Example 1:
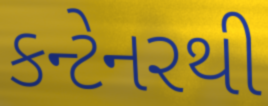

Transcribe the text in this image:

કન્ટેનરથી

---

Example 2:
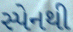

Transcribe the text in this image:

સ્પેનથી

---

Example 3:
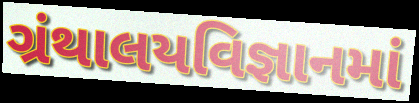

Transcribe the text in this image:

ગ્રંથાલયવિજ્ઞાનમાં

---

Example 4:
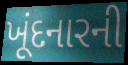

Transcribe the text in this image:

ખૂંદનારની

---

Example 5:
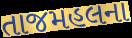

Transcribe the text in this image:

તાજમહલના